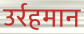
उर्रहमान